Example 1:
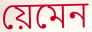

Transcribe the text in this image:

য়েমেন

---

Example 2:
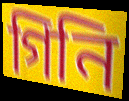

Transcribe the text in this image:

গিনি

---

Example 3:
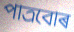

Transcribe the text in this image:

পাত্ৰবোৰ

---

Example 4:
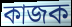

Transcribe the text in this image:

কাজক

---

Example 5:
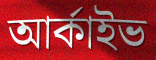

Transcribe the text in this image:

আৰ্কাইভ